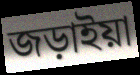
জড়াইয়া